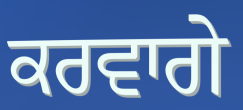
ਕਰਵਾਗੇ